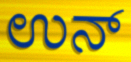
ಉನ್